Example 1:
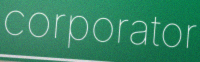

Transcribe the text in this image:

corporator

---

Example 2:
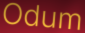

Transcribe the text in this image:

Odum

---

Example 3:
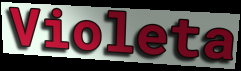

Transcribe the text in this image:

Violeta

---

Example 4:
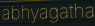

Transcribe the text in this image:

abhyagatha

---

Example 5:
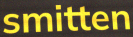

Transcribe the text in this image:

smitten